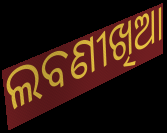
ଲବଣୀଖିଆ